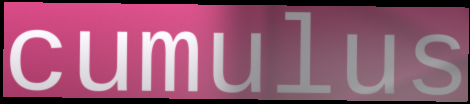
cumulus